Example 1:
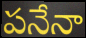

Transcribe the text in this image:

పనేనా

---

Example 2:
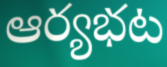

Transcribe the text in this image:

ఆర్యభట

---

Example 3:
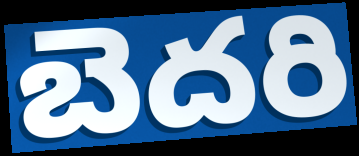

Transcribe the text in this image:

బెదరి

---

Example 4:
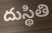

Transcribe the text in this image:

దుస్థితి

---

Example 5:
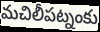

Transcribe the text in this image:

మచిలీపట్నంకు